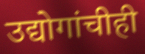
उद्योगांचीही